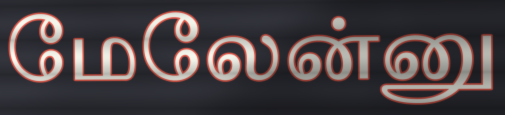
மேலேன்னு